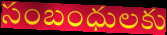
సంబంధులకు